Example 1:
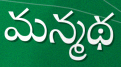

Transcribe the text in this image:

మన్మథ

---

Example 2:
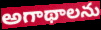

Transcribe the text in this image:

అగాథాలను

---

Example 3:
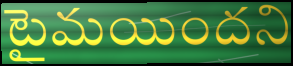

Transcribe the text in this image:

టైమయిందని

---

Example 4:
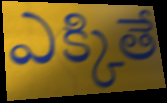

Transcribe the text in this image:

ఎక్కితే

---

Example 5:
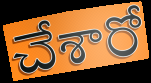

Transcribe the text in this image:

చేశారో